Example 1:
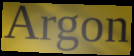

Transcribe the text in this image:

Argon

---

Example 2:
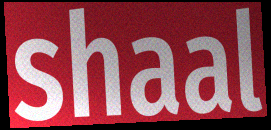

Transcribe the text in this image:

shaal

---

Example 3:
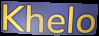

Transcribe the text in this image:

Khelo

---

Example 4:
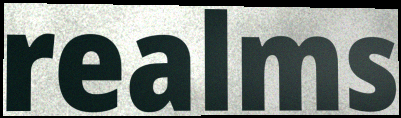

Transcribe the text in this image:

realms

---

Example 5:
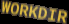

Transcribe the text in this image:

WORKDIR